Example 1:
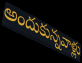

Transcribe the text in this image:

అందుకున్నవాళ్లు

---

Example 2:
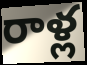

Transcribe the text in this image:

రాళ్ల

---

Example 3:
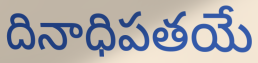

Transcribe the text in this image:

దినాధిపతయే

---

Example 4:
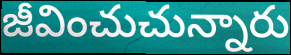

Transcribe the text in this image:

జీవించుచున్నారు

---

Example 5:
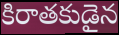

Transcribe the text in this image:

కిరాతకుడైన